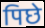
पिछे